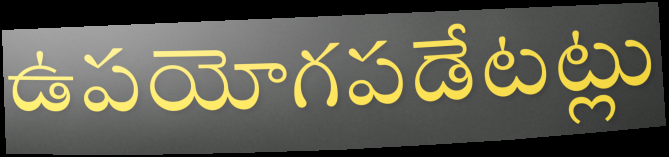
ఉపయోగపడేటట్లు